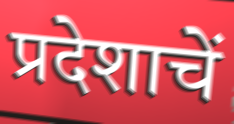
प्रदेशाचें